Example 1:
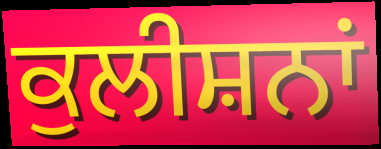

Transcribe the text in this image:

ਕੁਲੀਸ਼ਨਾਂ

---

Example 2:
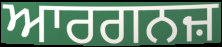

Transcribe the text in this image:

ਆਰਗਨਜ਼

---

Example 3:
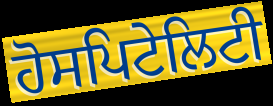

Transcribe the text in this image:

ਹੋਸਪਿਟੇਲਿਟੀ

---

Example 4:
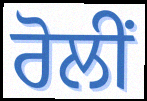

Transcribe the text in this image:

ਰੋਲੀਂ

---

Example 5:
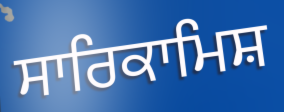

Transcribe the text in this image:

ਸਾਰਿਕਾਮਿਸ਼